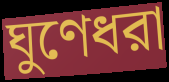
ঘুণেধরা